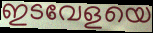
ഇടവേളയെ